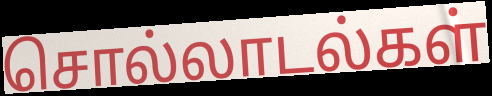
சொல்லாடல்கள்